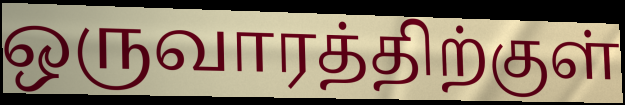
ஒருவாரத்திற்குள்